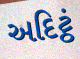
અદિટ્ઠં